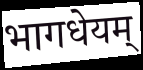
भागधेयम्